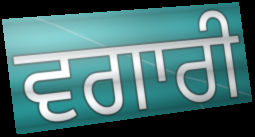
ਵਗਾਰੀ